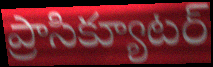
ప్రాసిక్యూటర్